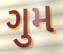
ગુમ